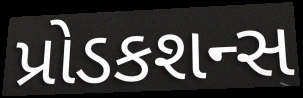
પ્રોડકશન્સ